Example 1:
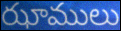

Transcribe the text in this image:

ఝాములు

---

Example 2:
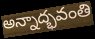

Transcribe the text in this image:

అన్నాద్భవంతి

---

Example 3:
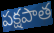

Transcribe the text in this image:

పక్షపాత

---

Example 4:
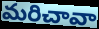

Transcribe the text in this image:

మరిచావా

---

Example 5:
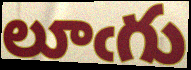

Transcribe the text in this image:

లూఁగు